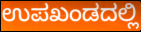
ಉಪಖಂಡದಲ್ಲಿ